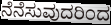
ನೆನೆಸುವುದರಿಂದ